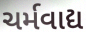
ચર્મવાદ્ય